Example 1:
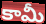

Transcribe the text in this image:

కామీ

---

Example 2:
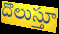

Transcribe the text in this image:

దొలుస్తూ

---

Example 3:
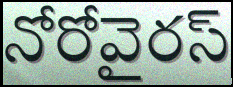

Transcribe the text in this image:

నోరోవైరస్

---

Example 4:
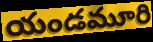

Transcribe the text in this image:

యండమూరి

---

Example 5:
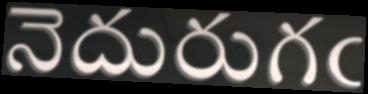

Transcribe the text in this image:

నెదురుగఁ